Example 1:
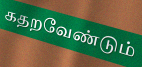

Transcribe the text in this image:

கதறவேண்டும்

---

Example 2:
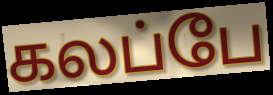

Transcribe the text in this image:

கலப்பே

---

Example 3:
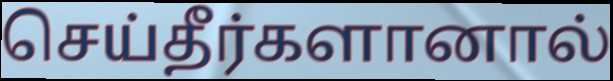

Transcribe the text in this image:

செய்தீர்களானால்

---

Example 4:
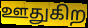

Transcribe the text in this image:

ஊதுகிற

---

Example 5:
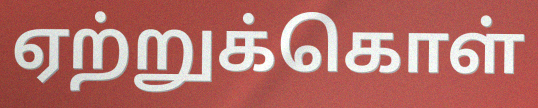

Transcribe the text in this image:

ஏற்றுக்கொள்